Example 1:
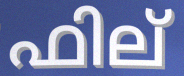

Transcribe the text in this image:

ഫില്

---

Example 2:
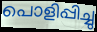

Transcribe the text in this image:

പൊളിപ്പിച്ചു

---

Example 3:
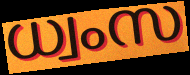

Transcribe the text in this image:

ധ്വംസ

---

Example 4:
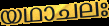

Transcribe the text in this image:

യഥാചലഃ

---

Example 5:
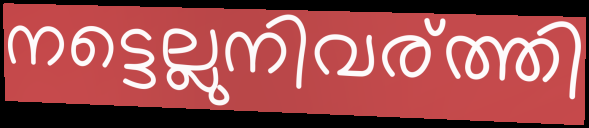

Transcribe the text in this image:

നട്ടെല്ലുനിവര്ത്തി